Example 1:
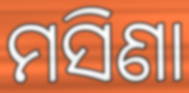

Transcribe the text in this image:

ମସିଣା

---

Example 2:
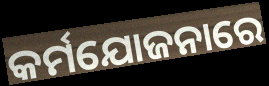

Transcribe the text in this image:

କର୍ମଯୋଜନାରେ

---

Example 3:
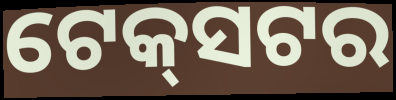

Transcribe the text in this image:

ଟେକ୍‌ସଟର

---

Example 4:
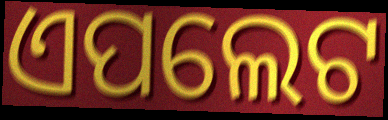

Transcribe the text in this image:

ଏପଲେଟ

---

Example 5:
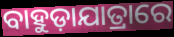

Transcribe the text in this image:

ବାହୁଡ଼ାଯାତ୍ରାରେ